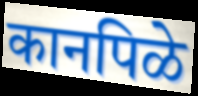
कानपिळे